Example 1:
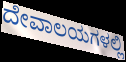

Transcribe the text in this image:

ದೇವಾಲಯಗಳಲ್ಲಿ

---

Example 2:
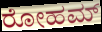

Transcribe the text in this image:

ರೋಹಮ್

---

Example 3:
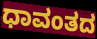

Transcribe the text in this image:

ಧಾವಂತದ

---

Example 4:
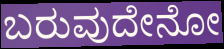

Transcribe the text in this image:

ಬರುವುದೇನೋ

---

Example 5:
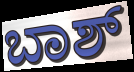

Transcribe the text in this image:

ಬಾಶ್